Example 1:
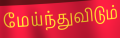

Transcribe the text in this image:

மேய்ந்துவிடும்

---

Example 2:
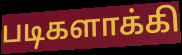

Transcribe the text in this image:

படிகளாக்கி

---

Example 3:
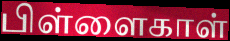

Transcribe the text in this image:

பிள்ளைகாள்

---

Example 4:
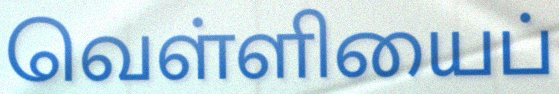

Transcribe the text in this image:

வெள்ளியைப்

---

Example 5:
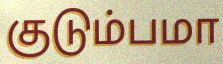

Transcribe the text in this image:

குடும்பமா